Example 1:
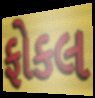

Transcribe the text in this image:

ફોકલ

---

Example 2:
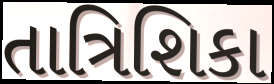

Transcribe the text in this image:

તાત્રિશિકા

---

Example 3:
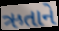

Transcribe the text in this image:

ઋતાને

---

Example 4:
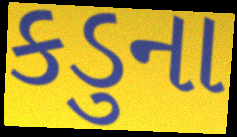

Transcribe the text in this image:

કડુના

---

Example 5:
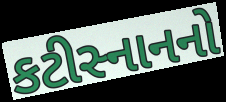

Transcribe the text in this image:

કટીસ્નાનનો